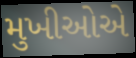
મુખીઓએ